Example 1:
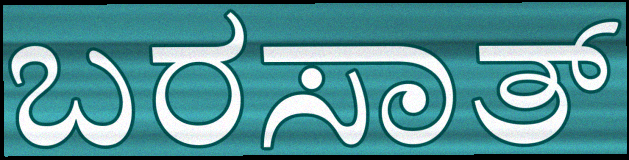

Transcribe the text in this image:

ಬರಸಾತ್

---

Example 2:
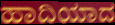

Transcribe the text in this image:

ಹಾದಿಯಾದ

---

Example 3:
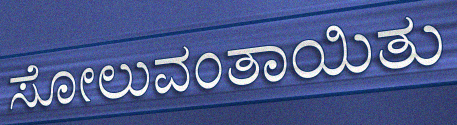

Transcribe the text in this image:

ಸೋಲುವಂತಾಯಿತು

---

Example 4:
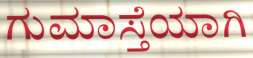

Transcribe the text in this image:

ಗುಮಾಸ್ತೆಯಾಗಿ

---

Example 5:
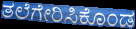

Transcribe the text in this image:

ತಲೆಗೇರಿಸಿಕೊಂಡ